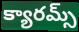
క్యారమ్స్